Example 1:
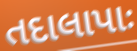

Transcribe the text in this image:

તદાલાપાઃ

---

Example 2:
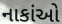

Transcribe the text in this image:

નાકાંઓ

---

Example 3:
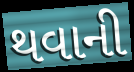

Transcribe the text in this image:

થવાની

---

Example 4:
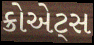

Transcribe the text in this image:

ક્રોએટ્સ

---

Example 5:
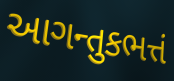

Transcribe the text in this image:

આગન્તુકભત્તં